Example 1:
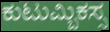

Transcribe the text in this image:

ಕುಟುಮ್ಬಿಕಸ್ಸ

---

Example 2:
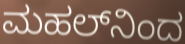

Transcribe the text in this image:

ಮಹಲ್‌ನಿಂದ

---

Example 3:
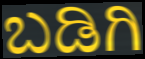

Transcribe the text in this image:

ಬಡಿಗಿ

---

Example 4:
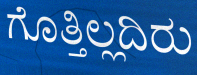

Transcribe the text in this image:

ಗೊತ್ತಿಲ್ಲದಿರು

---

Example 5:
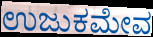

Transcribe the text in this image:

ಉಜುಕಮೇವ